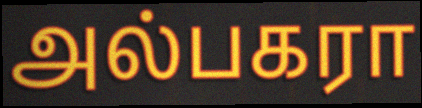
அல்பகரா